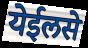
येईलसे